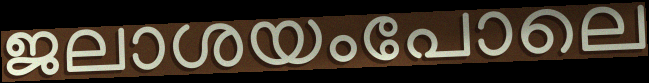
ജലാശയംപോലെ